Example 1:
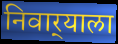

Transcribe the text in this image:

निवार्याला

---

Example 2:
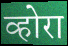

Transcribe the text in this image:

व्होरा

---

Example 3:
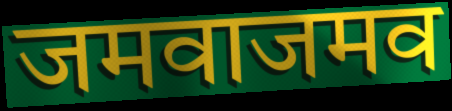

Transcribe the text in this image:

जमवाजमव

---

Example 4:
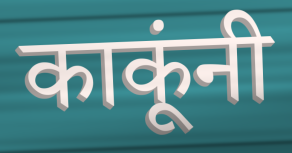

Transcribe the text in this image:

काकूंनी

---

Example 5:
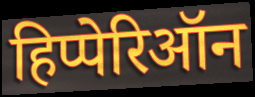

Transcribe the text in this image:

हिप्पेरिऑन